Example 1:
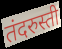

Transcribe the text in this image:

तंदरुस्ती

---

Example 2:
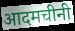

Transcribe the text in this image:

आदमचीनी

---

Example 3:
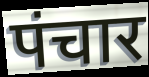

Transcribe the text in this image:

पंचार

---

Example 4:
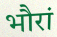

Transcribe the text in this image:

भौरां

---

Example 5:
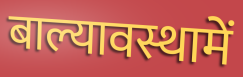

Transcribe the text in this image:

बाल्यावस्थामें